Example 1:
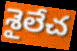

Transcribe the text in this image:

శైలేచ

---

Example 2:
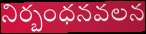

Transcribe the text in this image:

నిర్బంధనవలన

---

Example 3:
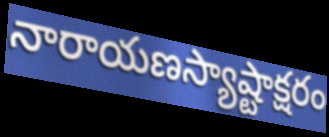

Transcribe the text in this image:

నారాయణస్యాష్టాక్షరం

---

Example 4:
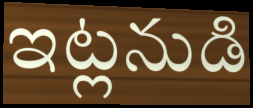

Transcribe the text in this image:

ఇట్లనుడి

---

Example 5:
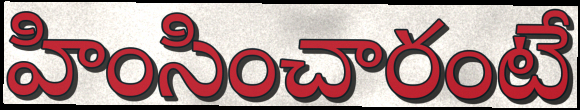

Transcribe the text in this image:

హింసించారంటే